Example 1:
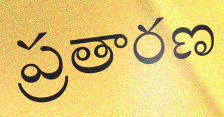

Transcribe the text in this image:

ప్రతారణ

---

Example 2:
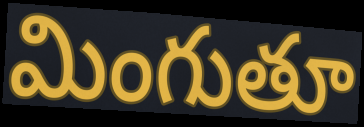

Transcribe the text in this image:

మింగుతూ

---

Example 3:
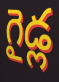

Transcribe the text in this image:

గైడ్ల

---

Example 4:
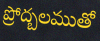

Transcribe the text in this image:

ప్రోద్బలముతో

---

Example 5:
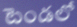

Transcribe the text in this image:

టెండలో